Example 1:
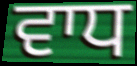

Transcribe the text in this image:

ਵਾਧ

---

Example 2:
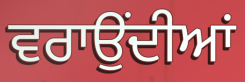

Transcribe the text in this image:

ਵਰਾਉਂਦੀਆਂ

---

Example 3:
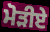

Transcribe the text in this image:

ਮੋੜੀਏ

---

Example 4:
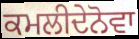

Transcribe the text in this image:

ਕਮਲੀਦੇਨੋਵਾ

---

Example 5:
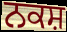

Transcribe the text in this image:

ਨਕਸ਼